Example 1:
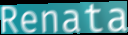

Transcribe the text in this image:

Renata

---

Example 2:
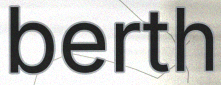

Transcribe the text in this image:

berth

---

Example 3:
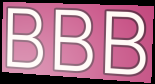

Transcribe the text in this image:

BBB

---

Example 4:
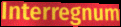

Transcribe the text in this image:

Interregnum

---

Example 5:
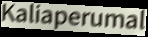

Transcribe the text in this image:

Kaliaperumal